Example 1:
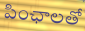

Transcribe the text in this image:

పింఛాలతో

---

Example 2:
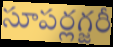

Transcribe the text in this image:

సూపర్లగ్జరీ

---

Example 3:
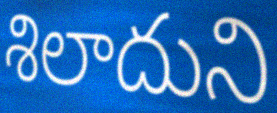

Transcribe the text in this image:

శిలాదుని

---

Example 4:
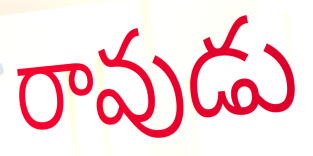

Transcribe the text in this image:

రావుడు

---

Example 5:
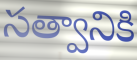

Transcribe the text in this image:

సత్వానికి